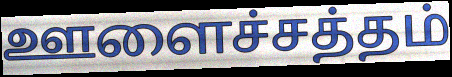
ஊளைச்சத்தம்